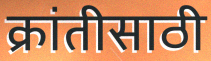
क्रांतीसाठी